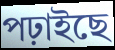
পঢ়াইছে